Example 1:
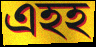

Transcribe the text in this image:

এহহ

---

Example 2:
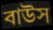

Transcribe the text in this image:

বাউস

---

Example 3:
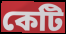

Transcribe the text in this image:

কেটি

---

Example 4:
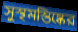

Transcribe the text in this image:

সুস্থমস্তিষ্কের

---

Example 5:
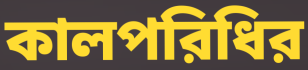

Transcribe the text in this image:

কালপরিধির